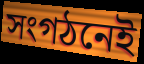
সংগঠনেই